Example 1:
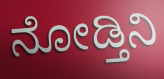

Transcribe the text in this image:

ನೋಡ್ತಿನಿ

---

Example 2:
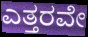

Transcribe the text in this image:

ಎತ್ತರವೇ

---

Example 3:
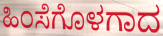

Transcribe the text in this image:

ಹಿಂಸೆಗೊಳಗಾದ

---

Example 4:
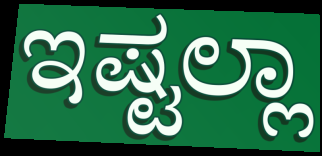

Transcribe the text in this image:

ಇಷ್ಟಲ್ಲಾ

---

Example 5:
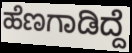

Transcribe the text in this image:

ಹೆಣಗಾಡಿದ್ದೆ